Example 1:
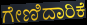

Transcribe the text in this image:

ಗೇಣಿದಾರಿಕೆ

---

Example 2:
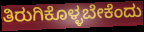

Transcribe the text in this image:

ತಿರುಗಿಕೊಳ್ಳಬೇಕೆಂದು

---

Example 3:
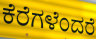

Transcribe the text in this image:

ಕೆರೆಗಳೆಂದರೆ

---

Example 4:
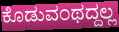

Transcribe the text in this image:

ಕೊಡುವಂಥದ್ದಲ್ಲ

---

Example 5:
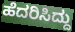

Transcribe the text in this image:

ಹೆದರಿಸಿದ್ದು